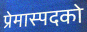
प्रेमास्पदको